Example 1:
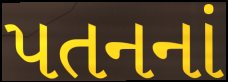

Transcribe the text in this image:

પતનનાં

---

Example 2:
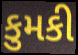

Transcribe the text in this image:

કુમકી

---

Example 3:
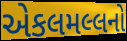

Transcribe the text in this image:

એકલમલ્લનો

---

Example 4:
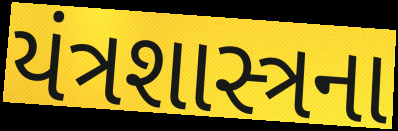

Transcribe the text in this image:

યંત્રશાસ્ત્રના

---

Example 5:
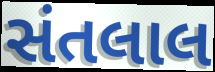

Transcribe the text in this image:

સંતલાલ